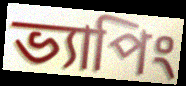
ভ্যাপিং